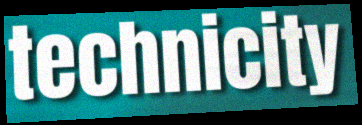
technicity